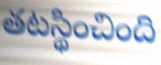
తటస్థించింది